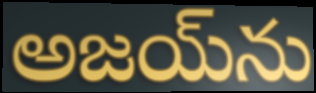
అజయ్‌ను